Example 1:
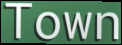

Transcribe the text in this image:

Town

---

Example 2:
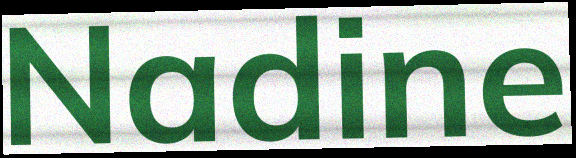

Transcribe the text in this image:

Nadine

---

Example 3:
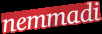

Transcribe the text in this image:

nemmadi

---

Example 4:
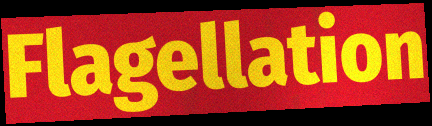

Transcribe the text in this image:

Flagellation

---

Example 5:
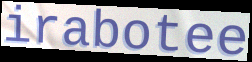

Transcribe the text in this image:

irabotee